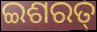
ଇଶରତ୍